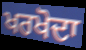
ਖਰਖੋਦਾ